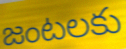
జంటలకు